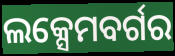
ଲକ୍ସେମବର୍ଗର